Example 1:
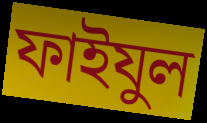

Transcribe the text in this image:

ফাইযুল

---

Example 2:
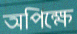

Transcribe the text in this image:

অপিক্ষে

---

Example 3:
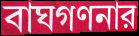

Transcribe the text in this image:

বাঘগণনার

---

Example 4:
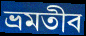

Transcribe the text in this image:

ভ্রমতীব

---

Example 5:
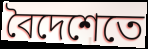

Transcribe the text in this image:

বৈদেশেতে